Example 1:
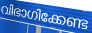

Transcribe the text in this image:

വിഭാഗിക്കേണ്ട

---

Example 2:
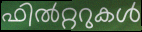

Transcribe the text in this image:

ഫിൽറ്ററുകൾ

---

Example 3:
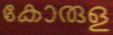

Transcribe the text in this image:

കോരുള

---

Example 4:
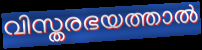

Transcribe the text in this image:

വിസ്തരഭയത്താൽ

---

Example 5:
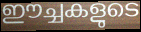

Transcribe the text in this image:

ഈച്ചകളുടെ